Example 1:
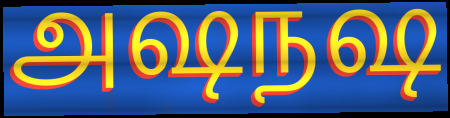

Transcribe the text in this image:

அஷநஷ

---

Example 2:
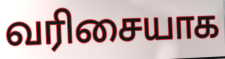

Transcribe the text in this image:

வரிசையாக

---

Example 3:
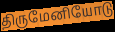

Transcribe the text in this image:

திருமேனியோடு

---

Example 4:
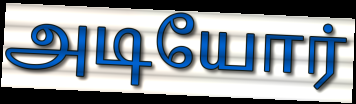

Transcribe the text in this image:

அடியோர்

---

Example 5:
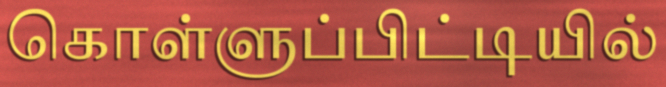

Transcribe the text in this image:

கொள்ளுப்பிட்டியில்